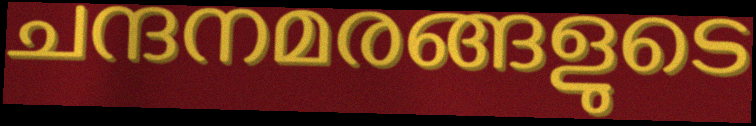
ചന്ദനമരങ്ങളുടെ